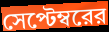
সেপ্টেম্বরের